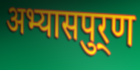
अभ्यासपुर्ण